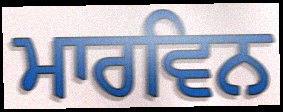
ਮਾਰਵਿਨ